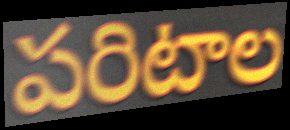
పరిటాల